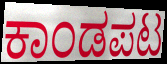
ಕಾಂಡಪಟ